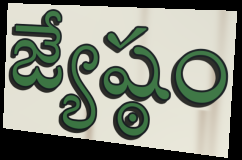
జ్యేష్ఠం